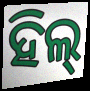
ହିଲ୍